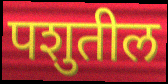
पशुतील